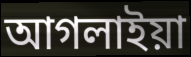
আগলাইয়া